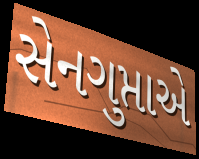
સેનગુપ્તાએ